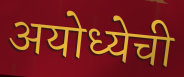
अयोध्येची